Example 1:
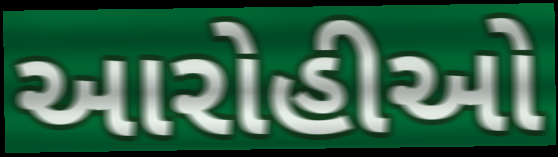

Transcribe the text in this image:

આરોહીઓ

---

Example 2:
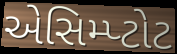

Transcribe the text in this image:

એસિમ્પ્ટોટ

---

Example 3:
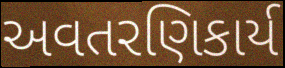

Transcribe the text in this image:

અવતરણિકાર્ય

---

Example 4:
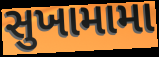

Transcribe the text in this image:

સુખામામા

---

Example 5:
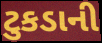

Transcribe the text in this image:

ટુકડાની